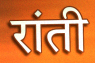
रांती